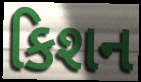
કિશન